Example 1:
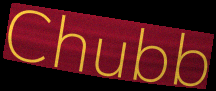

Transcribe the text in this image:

Chubb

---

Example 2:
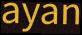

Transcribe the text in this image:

ayan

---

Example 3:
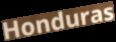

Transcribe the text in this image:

Honduras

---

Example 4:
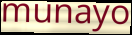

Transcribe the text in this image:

munayo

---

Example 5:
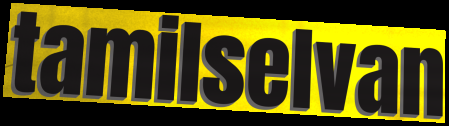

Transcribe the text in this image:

tamilselvan